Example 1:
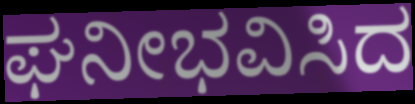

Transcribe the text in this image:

ಘನೀಭವಿಸಿದ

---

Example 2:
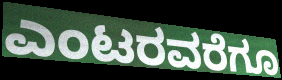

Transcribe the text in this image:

ಎಂಟರವರೆಗೂ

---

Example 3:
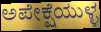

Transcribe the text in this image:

ಅಪೇಕ್ಷೆಯುಳ್ಳ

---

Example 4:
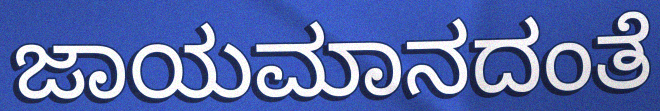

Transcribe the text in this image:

ಜಾಯಮಾನದಂತೆ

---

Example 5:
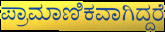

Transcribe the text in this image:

ಪ್ರಾಮಾಣಿಕವಾಗಿದ್ದರೆ